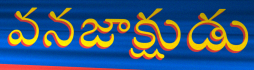
వనజాక్షుడు